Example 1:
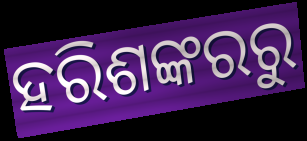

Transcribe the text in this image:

ହରିଶଙ୍କରରୁ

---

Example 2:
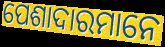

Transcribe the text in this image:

ପେଶାଦାରମାନେ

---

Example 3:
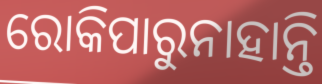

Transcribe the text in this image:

ରୋକିପାରୁନାହାନ୍ତି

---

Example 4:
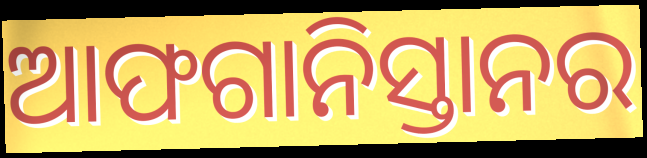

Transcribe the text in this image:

ଆଫଗାନିସ୍ତାନର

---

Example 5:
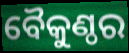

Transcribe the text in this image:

ବୈକୁଣ୍ଠର